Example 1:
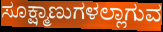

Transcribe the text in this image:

ಸೂಕ್ಷ್ಮಾಣುಗಳಲ್ಲಾಗುವ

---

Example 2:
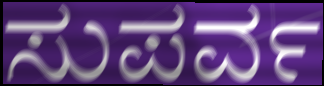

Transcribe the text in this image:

ಸುಪರ್ವ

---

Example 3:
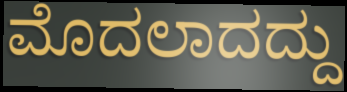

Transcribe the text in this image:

ಮೊದಲಾದದ್ದು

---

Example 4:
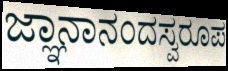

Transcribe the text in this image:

ಜ್ಞಾನಾನಂದಸ್ವರೂಪ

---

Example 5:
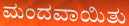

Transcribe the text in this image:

ಮಂದವಾಯಿತು